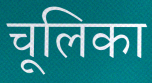
चूलिका